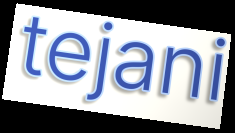
tejani